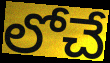
లోచే